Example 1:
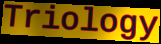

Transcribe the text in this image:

Triology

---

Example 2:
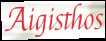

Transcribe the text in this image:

Aigisthos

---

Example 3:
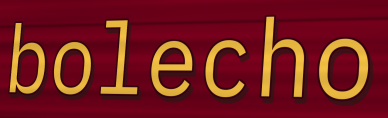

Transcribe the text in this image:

bolecho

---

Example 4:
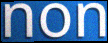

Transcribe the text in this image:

non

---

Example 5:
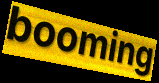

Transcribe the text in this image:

booming